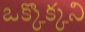
ఒక్కొక్కని